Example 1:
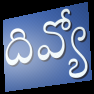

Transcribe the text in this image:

దివ్యో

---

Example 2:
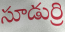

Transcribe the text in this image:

సూడుర్రి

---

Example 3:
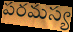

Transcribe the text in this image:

పరమస్య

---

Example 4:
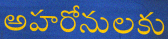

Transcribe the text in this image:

అహరోనులకు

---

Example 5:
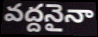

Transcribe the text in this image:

వద్దనైనా